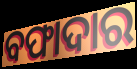
ବଫାଦାର